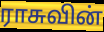
ராசுவின்